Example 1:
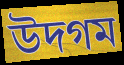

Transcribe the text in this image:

উদগম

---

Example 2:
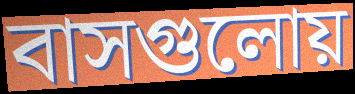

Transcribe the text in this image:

বাসগুলোয়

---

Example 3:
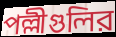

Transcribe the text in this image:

পল্লীগুলির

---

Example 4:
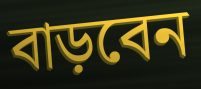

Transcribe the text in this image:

বাড়বেন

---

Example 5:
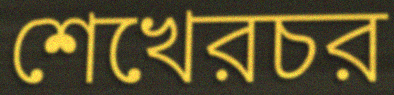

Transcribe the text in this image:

শেখেরচর